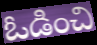
ఓడించి